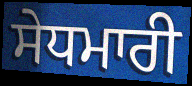
ਸੇਧਮਾਰੀ